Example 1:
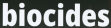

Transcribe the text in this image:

biocides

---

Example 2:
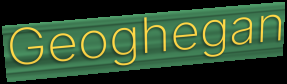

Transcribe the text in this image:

Geoghegan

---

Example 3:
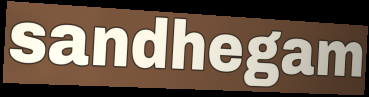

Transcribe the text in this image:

sandhegam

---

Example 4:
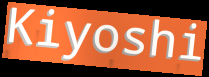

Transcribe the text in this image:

Kiyoshi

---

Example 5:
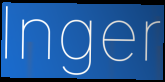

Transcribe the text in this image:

Inger